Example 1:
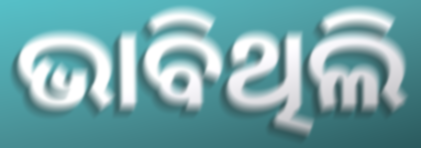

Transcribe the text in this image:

ଭାବିଥିଲି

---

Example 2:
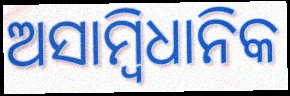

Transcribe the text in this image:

ଅସାମ୍ବିଧାନିକ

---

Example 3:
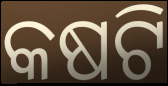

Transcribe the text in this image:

କଷଟି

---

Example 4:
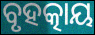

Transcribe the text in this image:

ବୃହତ୍କାୟ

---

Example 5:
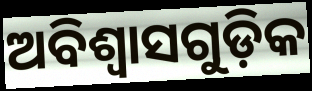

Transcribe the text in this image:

ଅବିଶ୍ଵାସଗୁଡ଼ିକ